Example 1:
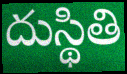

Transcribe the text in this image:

దుస్థితి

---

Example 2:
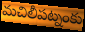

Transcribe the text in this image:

మచిలీపట్నంకు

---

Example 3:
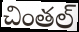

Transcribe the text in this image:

చింతల్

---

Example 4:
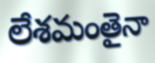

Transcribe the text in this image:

లేశమంతైనా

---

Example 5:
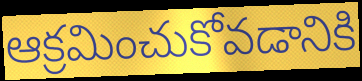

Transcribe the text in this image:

ఆక్రమించుకోవడానికి